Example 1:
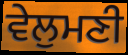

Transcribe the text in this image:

ਵੇਲੁਮਣੀ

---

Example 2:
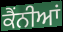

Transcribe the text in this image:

ਕੈਂਨੀਆਂ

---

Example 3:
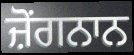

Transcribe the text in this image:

ਜ਼ੋਂਗਨਾਨ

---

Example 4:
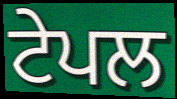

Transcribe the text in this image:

ਟੇਪਲ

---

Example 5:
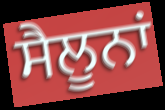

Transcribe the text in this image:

ਸੈਲੂਨਾਂ